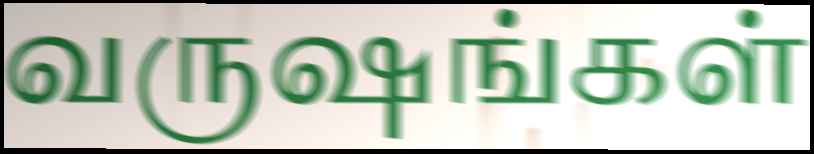
வருஷங்கள்